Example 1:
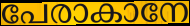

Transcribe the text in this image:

പേരാകാനേ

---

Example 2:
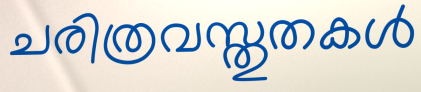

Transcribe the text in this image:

ചരിത്രവസ്തുതകൾ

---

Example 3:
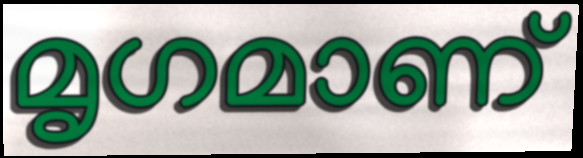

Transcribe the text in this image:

മൃഗമാണ്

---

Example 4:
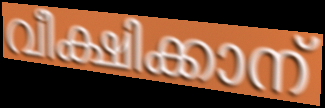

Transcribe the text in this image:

വീക്ഷിക്കാന്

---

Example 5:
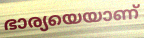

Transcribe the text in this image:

ഭാര്യയെയാണ്